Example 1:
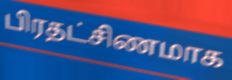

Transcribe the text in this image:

பிரதட்சிணமாக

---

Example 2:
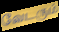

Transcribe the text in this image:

வேடரும்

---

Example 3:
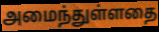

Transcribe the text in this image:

அமைந்துள்ளதை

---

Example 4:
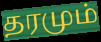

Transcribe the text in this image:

தரமும்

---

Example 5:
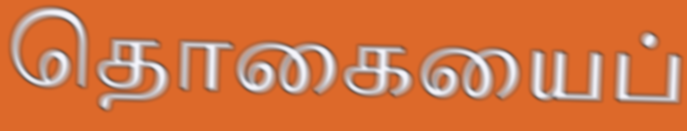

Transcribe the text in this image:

தொகையைப்